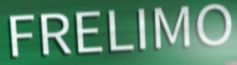
FRELIMO